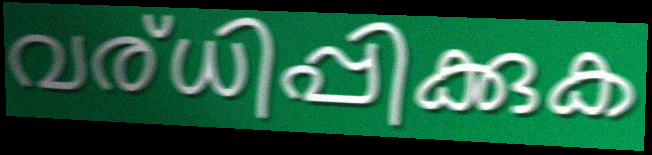
വര്ധിപ്പിക്കുക